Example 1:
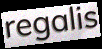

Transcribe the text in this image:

regalis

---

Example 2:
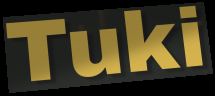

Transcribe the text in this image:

Tuki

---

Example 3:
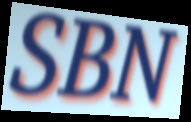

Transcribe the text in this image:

SBN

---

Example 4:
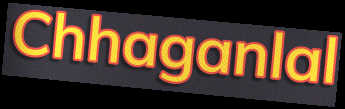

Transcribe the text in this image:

Chhaganlal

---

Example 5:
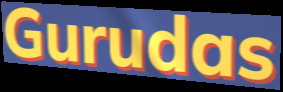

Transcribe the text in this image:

Gurudas